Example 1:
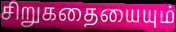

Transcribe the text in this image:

சிறுகதையையும்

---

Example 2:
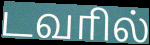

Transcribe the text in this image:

டவரில்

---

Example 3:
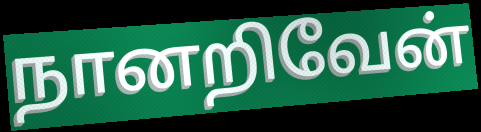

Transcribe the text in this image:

நானறிவேன்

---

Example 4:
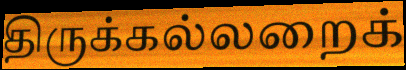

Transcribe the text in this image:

திருக்கல்லறைக்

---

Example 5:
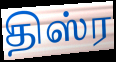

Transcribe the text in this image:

திஸ்ர